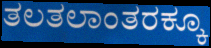
ತಲತಲಾಂತರಕ್ಕೂ